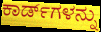
ಕಾರ್ಡ್‌ಗಳನ್ನು